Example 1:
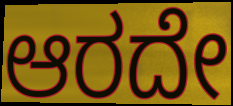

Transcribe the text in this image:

ಆರದೇ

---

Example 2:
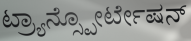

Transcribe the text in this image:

ಟ್ರ್ಯಾನ್ಸ್ಪೋರ್ಟೇಷನ್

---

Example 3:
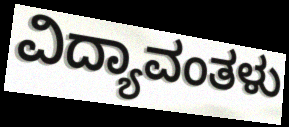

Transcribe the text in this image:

ವಿದ್ಯಾವಂತಳು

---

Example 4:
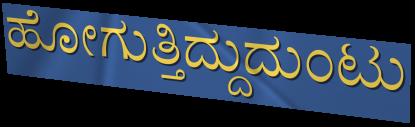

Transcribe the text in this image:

ಹೋಗುತ್ತಿದ್ದುದುಂಟು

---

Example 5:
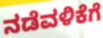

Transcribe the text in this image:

ನಡೆವಳಿಕೆಗೆ